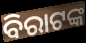
ବିରାଟଙ୍କ